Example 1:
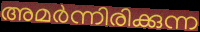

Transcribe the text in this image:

അമർന്നിരിക്കുന്ന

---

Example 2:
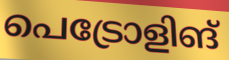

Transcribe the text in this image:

പെട്രോളിങ്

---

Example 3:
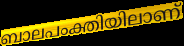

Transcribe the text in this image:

ബാലപംക്തിയിലാണ്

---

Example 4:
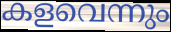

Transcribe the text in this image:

കളവെന്നും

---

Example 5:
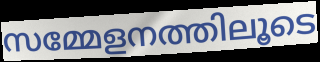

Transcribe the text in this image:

സമ്മേളനത്തിലൂടെ